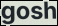
gosh